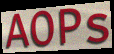
AOPs